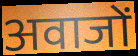
अवाजों